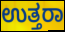
ಉತ್ತರಾ